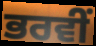
ਭਰਵੀਂ